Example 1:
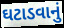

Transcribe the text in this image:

ઘટાડવાનું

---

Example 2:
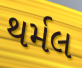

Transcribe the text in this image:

થર્મલ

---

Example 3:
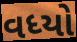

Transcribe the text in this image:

વધ્યો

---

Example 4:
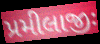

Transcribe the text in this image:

પ્રમીલાજીઃ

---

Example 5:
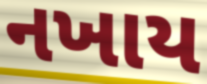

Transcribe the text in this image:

નખાય